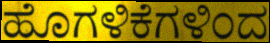
ಹೊಗಳಿಕೆಗಳಿಂದ